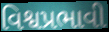
વિશ્વપ્રભાવી